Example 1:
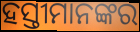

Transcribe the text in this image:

ହସ୍ତୀମାନଙ୍କର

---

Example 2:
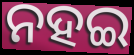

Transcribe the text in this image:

ନହଇ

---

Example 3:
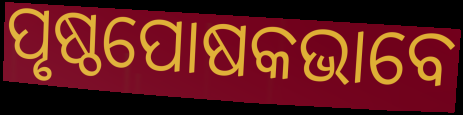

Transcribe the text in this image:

ପୃଷ୍ଠପୋଷକଭାବେ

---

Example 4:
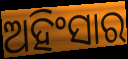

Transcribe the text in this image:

ଅହିଂସାର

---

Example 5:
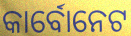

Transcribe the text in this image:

କାର୍ବୋନେଟ